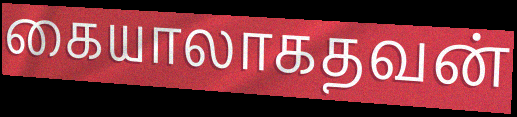
கையாலாகதவன்